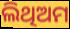
ଲିଥିଅମ